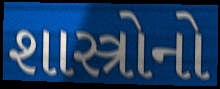
શાસ્ત્રોનો